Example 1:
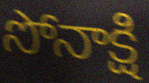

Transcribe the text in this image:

సోనాక్షి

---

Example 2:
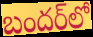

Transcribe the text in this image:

బందర్‌లో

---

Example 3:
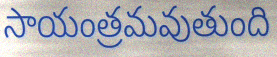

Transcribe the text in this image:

సాయంత్రమవుతుంది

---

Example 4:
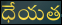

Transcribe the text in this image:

ధేయత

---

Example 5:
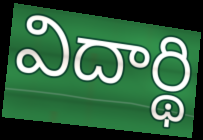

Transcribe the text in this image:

విదార్థి